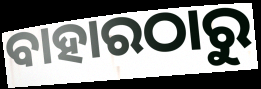
ବାହାରଠାରୁ